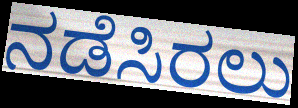
ನಡೆಸಿರಲು